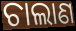
ଚାଲାଣ